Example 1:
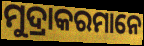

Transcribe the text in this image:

ମୁଦ୍ରାକରମାନେ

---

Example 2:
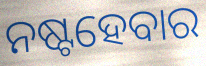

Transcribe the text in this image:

ନଷ୍ଟହେବାର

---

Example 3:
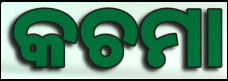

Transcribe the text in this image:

କଚମା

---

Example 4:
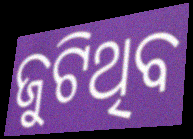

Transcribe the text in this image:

ଜୁଟିଥିବ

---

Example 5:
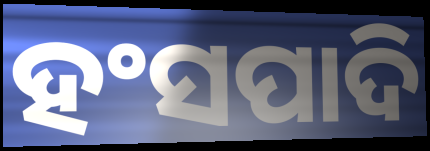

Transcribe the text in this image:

ହଂସପାଦି